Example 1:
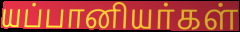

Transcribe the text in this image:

யப்பானியர்கள்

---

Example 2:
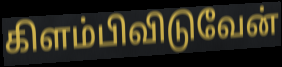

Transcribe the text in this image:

கிளம்பிவிடுவேன்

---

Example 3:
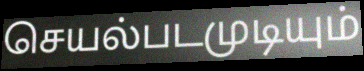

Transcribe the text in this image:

செயல்படமுடியும்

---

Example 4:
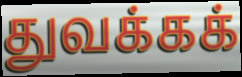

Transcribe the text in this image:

துவக்கக்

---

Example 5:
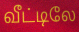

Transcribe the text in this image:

வீட்டிலே